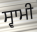
ਸ੍ਵਾਮੀ